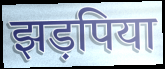
झड़पिया